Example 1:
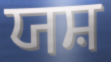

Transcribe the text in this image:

ਯਸ਼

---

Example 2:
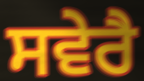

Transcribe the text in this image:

ਸਵੇਰੈ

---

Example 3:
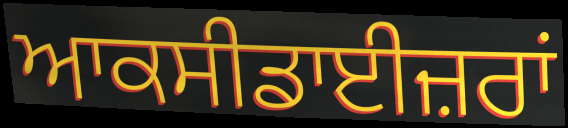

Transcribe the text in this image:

ਆਕਸੀਡਾਈਜ਼ਰਾਂ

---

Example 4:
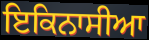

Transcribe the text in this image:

ਇਕਿਨਾਸੀਆ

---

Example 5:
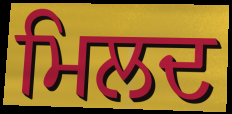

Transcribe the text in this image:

ਮਿਲਦ